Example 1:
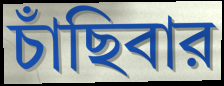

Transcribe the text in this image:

চাঁছিবার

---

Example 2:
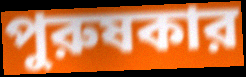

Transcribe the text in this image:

পুরুষকার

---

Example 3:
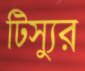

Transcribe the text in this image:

টিস্যুর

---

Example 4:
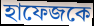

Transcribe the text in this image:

হাফেজকে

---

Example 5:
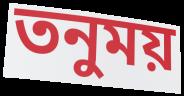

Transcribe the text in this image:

তনুময়